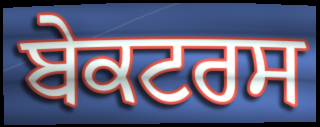
ਬੇਕਟਰਸ